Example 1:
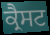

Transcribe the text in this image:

ਕ੍ਰੈਸਟ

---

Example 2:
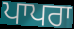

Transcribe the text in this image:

ਪਾਪਰਾ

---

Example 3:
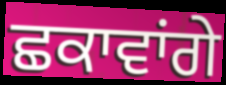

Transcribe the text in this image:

ਛਕਾਵਾਂਗੇ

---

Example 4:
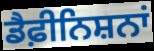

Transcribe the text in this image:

ਡੈਫ਼ੀਨਿਸ਼ਨਾਂ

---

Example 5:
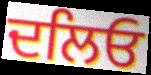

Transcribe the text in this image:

ਦਲਿਓ